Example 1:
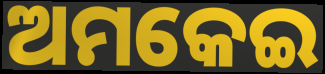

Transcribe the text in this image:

ଅମକେଇ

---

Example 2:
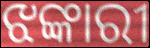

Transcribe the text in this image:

ଝଙ୍କାରୀ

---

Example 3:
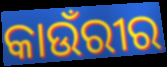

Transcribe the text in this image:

କାଉଁରୀର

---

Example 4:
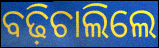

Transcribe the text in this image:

ବଢ଼ିଚାଲିଲେ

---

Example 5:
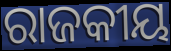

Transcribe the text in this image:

ରାଜକୀୟ